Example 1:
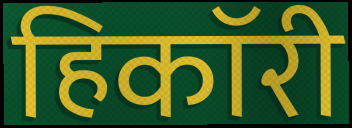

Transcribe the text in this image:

हिकॉरी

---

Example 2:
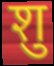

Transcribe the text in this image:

शु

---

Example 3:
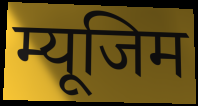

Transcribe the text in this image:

म्यूजिम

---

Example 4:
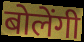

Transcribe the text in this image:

बोलेंगी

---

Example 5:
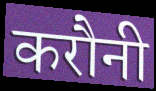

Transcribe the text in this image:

करौनी